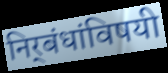
निर्बंधांविषयी